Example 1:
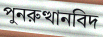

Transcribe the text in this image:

পুনরুত্থানবিদ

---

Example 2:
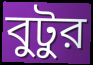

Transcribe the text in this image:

বুটুর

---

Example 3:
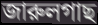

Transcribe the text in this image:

জারুলগাছ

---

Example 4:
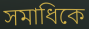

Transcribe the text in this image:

সমাধিকে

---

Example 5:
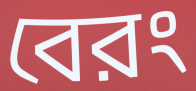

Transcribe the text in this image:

বেরং